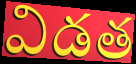
విడత